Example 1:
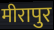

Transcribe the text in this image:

मीरापुर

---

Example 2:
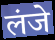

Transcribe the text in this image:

लंजे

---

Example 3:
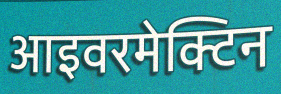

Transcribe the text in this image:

आइवरमेक्टिन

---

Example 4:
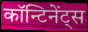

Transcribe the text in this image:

कॉन्टिनेंट्स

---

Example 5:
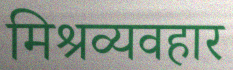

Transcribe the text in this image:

मिश्रव्यवहार